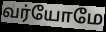
வர்யோமே